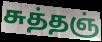
சுத்தஞ்